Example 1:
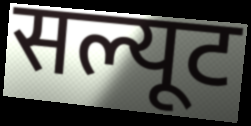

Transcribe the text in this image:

सल्यूट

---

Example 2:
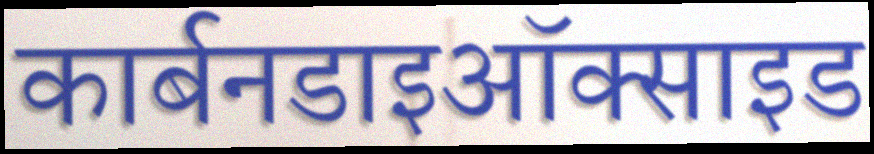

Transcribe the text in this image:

कार्बनडाइऑक्साइड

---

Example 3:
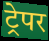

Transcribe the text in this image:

ट्रेपर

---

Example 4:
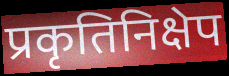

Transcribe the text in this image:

प्रकृतिनिक्षेप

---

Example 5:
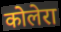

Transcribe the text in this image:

कोलेरा